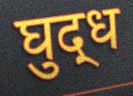
घुद्ध